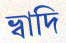
ভ্বাদি